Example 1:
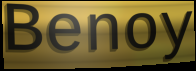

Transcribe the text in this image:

Benoy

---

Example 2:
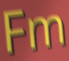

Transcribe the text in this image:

Fm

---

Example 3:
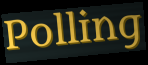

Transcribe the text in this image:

Polling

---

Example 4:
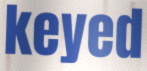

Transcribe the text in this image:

keyed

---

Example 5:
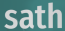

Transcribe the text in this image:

sath